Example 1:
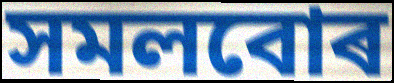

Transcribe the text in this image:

সমলবোৰ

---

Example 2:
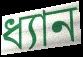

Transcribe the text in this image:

ধ্যান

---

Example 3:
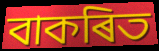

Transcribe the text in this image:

বাকৰিত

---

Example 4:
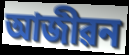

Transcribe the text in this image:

আজীৱন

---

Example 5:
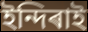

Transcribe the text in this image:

ইন্দিৰাই